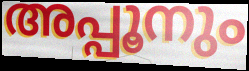
അപ്പൂനും